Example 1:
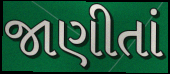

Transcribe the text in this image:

જાણીતાં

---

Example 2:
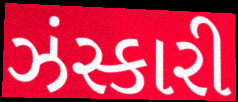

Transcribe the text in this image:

ઝંસ્કારી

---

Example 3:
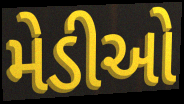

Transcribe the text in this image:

મેડીઓ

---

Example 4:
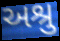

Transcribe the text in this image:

અશ્રુ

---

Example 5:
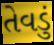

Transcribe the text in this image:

તેવડું